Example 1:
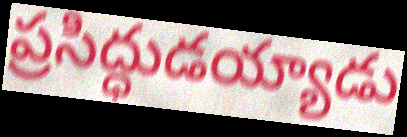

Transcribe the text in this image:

ప్రసిద్ధుడయ్యాడు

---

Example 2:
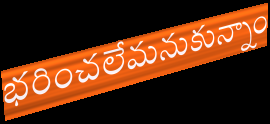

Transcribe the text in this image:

భరించలేమనుకున్నాం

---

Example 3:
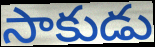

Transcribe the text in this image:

సాకుడు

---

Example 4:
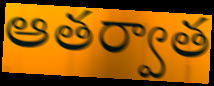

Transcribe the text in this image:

ఆతర్వాత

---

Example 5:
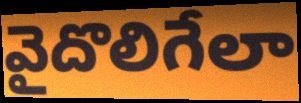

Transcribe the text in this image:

వైదొలిగేలా